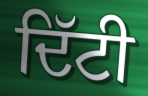
ਦਿੱਟੀ